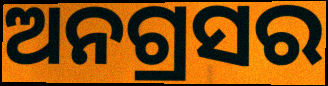
ଅନଗ୍ରସର